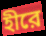
হীরে